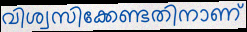
വിശ്വസിക്കേണ്ടതിനാണ്